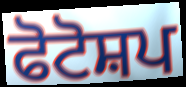
ਫੋਟੋਸ਼ਪ